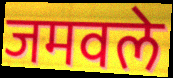
जमवले